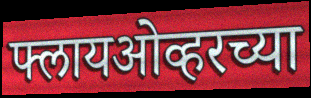
फ्लायओव्हरच्या